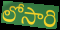
లోసారి